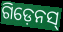
ଗିଡ଼େନସ୍